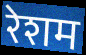
रेशम